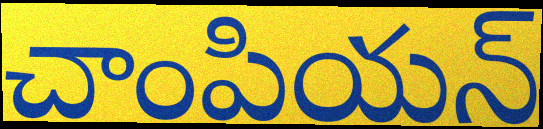
చాంపియన్